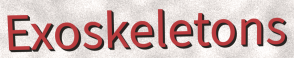
Exoskeletons